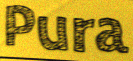
Pura